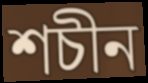
শচীন